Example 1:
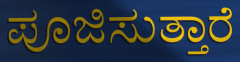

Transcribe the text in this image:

ಪೂಜಿಸುತ್ತಾರೆ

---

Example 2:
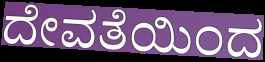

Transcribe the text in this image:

ದೇವತೆಯಿಂದ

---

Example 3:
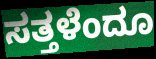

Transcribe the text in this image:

ಸತ್ತಳೆಂದೂ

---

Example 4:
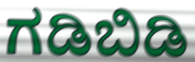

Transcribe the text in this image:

ಗಡಿಬಿಡಿ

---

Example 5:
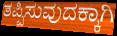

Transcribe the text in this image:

ತಪ್ಪಿಸುವುದಕ್ಕಾಗಿ